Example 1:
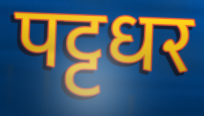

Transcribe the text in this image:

पट्टधर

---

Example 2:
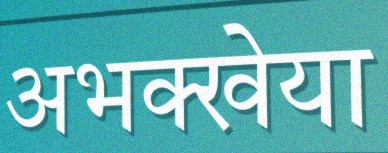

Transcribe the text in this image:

अभक्खेया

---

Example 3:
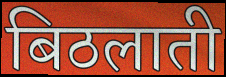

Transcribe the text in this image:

बिठलाती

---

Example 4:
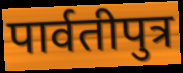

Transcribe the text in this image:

पार्वतीपुत्र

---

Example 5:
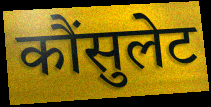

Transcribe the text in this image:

कौंसुलेट